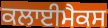
ਕਲਾਈਮੈਕਸ